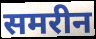
समरीन